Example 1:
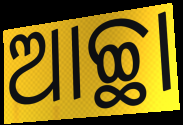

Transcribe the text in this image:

ଆଚ୍ଛା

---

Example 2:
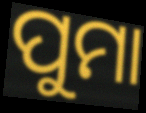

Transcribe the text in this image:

ପୁମା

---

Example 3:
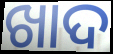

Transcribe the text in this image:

ଖାଦ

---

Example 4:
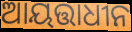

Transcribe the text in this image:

ଆୟତ୍ତାଧୀନ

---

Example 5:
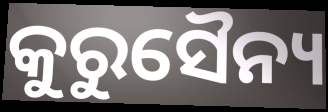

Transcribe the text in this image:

କୁରୁସୈନ୍ୟ